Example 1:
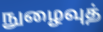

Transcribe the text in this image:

நுழைவுத்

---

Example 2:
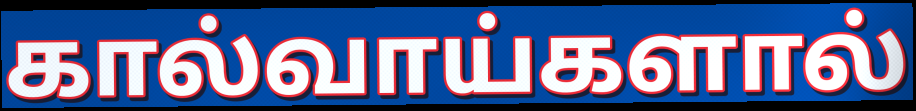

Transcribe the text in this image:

கால்வாய்களால்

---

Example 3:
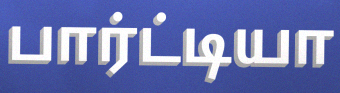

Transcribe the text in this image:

பார்ட்டியா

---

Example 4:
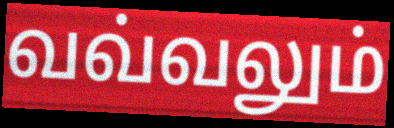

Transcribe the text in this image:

வவ்வலும்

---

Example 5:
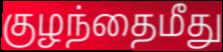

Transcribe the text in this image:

குழந்தைமீது